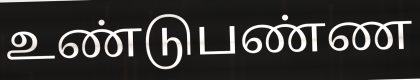
உண்டுபண்ண